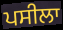
ਪਸੀਲਾ